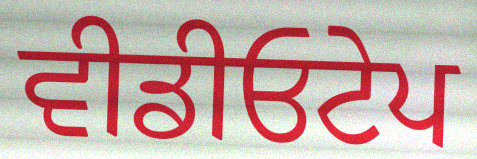
ਵੀਡੀਓਟੇਪ